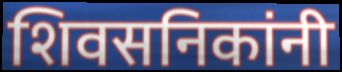
शिवसनिकांनी